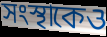
সংস্থাকেও